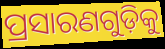
ପ୍ରସାରଣଗୁଡ଼ିକୁ